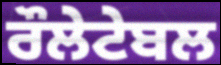
ਰੌਲੇਟੇਬਲ